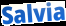
Salvia